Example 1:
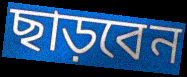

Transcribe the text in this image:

ছাড়বেন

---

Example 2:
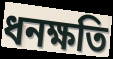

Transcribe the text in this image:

ধনক্ষতি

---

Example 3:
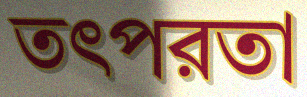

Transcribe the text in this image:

তৎপরতা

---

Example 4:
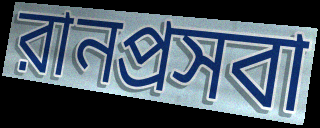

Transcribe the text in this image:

রানপ্রসবা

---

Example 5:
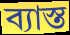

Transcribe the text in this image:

ব্যাস্ত